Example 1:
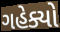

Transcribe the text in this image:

ગહેક્યો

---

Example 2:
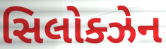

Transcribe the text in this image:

સિલોક્ઝેન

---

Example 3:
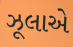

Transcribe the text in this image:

ઝૂલાએ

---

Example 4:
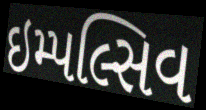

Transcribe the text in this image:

ઇમ્પલ્સિવ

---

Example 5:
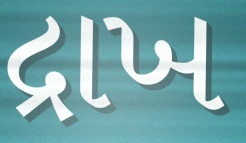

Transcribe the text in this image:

દ્રાખ